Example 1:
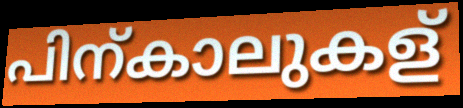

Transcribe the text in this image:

പിന്കാലുകള്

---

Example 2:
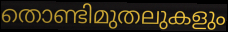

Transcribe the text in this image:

തൊണ്ടിമുതലുകളും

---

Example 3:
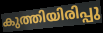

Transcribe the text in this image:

കുത്തിയിരിപ്പു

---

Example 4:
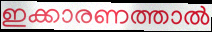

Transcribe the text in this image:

ഇക്കാരണത്താൽ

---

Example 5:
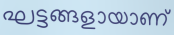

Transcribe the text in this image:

ഘട്ടങ്ങളായാണ്